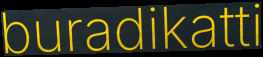
buradikatti